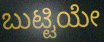
ಬುಟ್ಟಿಯೇ